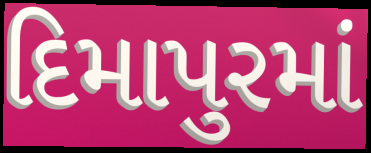
દિમાપુરમાં